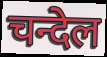
चन्देल